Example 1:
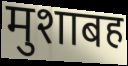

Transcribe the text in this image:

मुशाबह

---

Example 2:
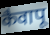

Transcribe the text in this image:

कैवापू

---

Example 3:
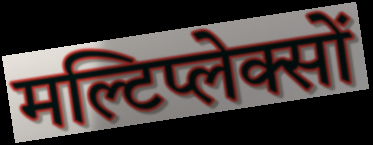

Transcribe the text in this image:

मल्टिप्लेक्सों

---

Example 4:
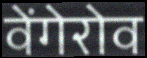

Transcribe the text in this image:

वेंगेरोव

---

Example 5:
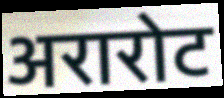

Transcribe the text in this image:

अरारोट